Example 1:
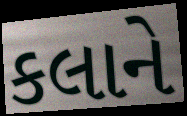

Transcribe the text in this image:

કલાને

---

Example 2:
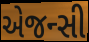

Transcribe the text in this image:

એજન્સી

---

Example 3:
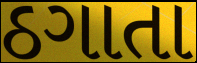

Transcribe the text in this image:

ઠગાતા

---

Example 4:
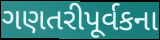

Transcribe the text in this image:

ગણતરીપૂર્વકના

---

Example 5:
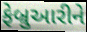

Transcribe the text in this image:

ફેબ્રુઆરીને